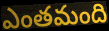
ఎంతమంది